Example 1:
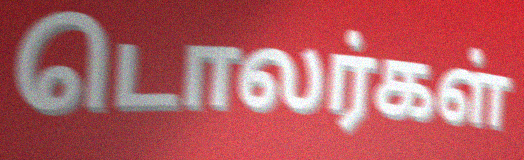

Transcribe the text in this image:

டொலர்கள்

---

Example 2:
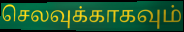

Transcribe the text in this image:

செலவுக்காகவும்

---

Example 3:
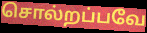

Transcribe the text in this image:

சொல்றப்பவே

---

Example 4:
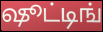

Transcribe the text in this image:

ஷூட்டிங்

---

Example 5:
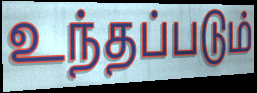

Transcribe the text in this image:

உந்தப்படும்